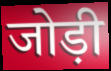
जोड़ी